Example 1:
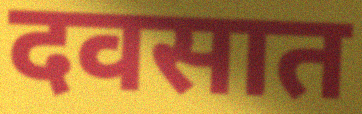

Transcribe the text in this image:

दवसात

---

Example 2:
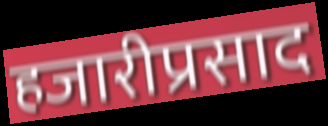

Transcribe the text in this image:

हजारीप्रसाद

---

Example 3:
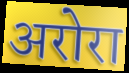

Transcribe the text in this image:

अरोरा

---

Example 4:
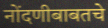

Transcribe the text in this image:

नोंदणीबाबतचे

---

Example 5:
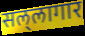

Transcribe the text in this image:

सल्लागार